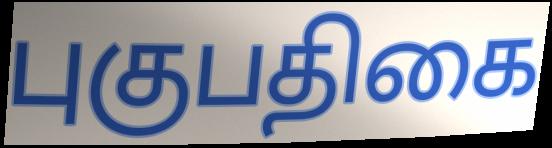
புகுபதிகை